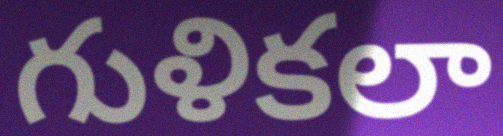
గుళికలా